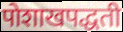
पोशाखपद्धती